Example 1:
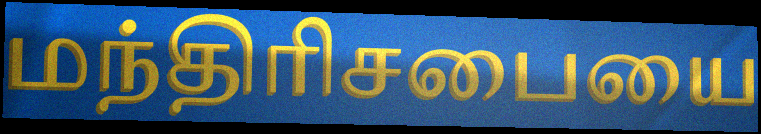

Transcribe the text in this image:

மந்திரிசபையை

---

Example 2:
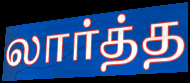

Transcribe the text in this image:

லார்த்த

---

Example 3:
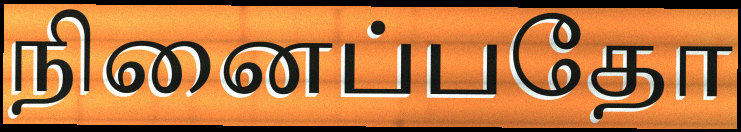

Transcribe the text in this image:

நினைப்பதோ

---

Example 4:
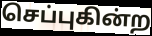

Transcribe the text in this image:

செப்புகின்ற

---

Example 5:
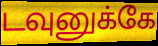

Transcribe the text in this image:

டவுனுக்கே